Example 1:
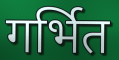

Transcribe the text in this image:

गर्भित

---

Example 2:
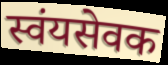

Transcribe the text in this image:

स्वंयसेवक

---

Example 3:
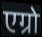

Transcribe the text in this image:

एग्रो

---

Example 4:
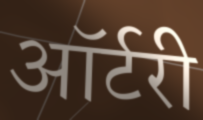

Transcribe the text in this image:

ऑर्टरी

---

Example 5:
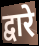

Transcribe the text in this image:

द्वारे